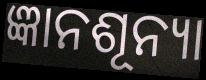
ଜ୍ଞାନଶୂନ୍ୟା